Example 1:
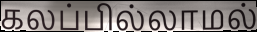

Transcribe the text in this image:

கலப்பில்லாமல்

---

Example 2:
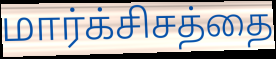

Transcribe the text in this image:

மார்க்சிசத்தை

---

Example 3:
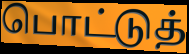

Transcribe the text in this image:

பொட்டுத்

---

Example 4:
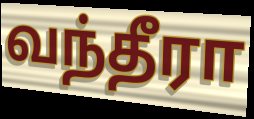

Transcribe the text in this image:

வந்தீரா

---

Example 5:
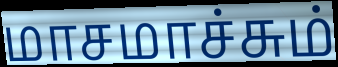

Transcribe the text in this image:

மாசமாச்சும்